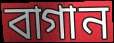
বাগান